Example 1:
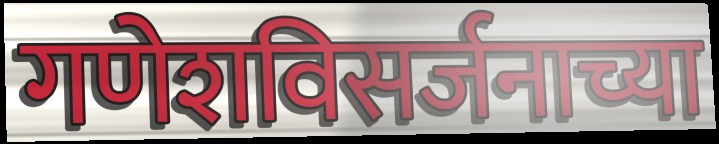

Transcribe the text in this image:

गणेशविसर्जनाच्या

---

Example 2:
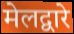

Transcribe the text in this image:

मेलद्वारे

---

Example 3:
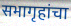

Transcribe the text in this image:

सभागृहांचा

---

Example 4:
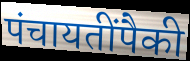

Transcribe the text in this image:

पंचायतींपैकी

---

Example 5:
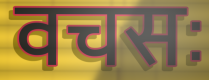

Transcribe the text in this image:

वचसः